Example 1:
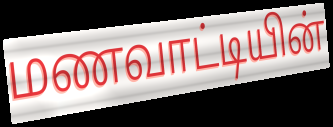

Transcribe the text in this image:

மணவாட்டியின்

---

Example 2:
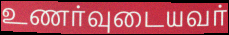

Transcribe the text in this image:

உணர்வுடையவர்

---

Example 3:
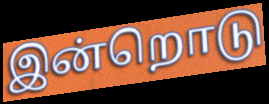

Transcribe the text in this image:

இன்றொடு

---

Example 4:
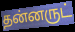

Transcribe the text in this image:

தன்னருட்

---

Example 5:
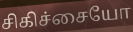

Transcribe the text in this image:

சிகிச்சையோ